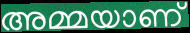
അമ്മയാണ്